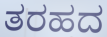
ತರಹದ